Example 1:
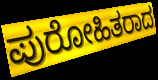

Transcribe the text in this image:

ಪುರೋಹಿತರಾದ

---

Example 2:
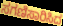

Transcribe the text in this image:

ಸಗಣಿಸಾರಿಸಿದ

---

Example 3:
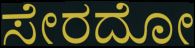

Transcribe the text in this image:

ಸೇರದೋ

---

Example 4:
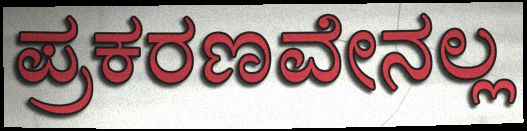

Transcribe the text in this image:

ಪ್ರಕರಣವೇನಲ್ಲ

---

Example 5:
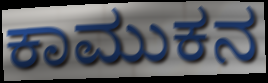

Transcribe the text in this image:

ಕಾಮುಕನ